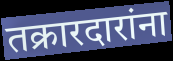
तक्रारदारांना